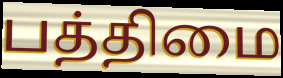
பத்திமை